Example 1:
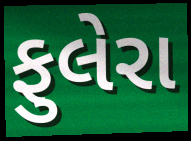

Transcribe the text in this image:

ફુલેરા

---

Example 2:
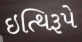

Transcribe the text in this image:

ઇત્થિરૂપે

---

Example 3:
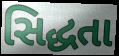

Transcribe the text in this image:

સિદ્ધતા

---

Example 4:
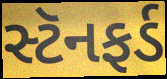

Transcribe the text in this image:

સ્ટૅનફર્ડ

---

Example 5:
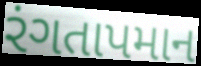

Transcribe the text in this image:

રંગતાપમાન